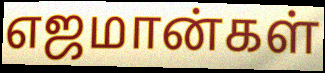
எஜமான்கள்